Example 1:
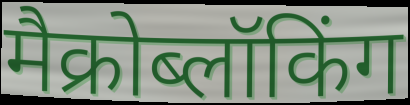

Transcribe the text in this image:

मैक्रोब्लॉकिंग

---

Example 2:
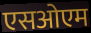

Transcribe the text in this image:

एसओएम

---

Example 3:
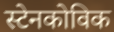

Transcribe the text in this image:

स्टेनकोविक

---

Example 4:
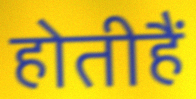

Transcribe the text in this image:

होतीहैं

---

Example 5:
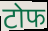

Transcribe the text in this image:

टोफ